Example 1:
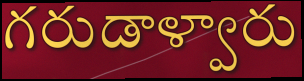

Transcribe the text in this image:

గరుడాళ్వారు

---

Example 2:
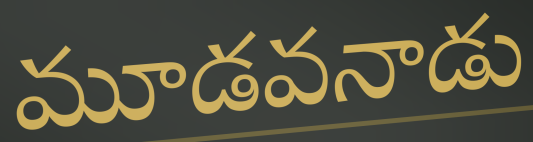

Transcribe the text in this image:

మూడవనాడు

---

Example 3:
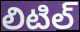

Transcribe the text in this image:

లిటిల్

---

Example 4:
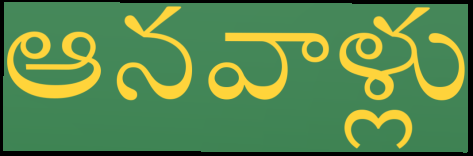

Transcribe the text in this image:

ఆనవాళ్లు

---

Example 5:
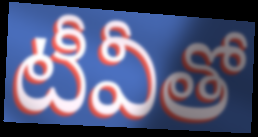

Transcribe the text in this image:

టీవీతో